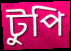
টুপি